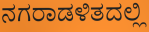
ನಗರಾಡಳಿತದಲ್ಲಿ